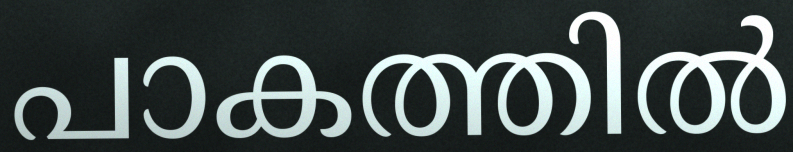
പാകത്തിൽ